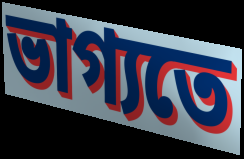
ভাগ্যতে